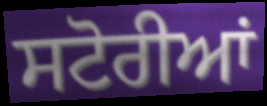
ਸਟੋਰੀਆਂ